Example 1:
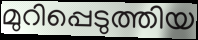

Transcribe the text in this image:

മുറിപ്പെടുത്തിയ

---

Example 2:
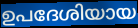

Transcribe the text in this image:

ഉപദേശിയായ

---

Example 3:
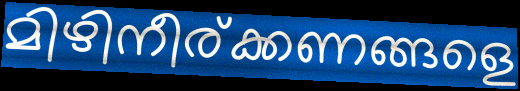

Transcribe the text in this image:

മിഴിനീര്ക്കണങ്ങളെ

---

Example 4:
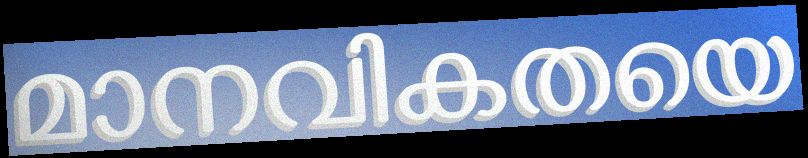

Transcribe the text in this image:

മാനവികതയെ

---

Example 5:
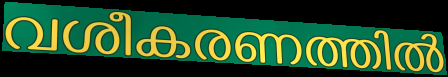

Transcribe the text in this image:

വശീകരണത്തിൽ